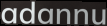
adannu